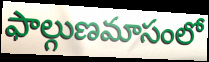
ఫాల్గుణమాసంలో